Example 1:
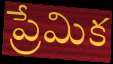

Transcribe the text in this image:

ప్రేమిక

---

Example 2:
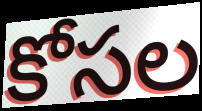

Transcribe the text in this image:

కోసల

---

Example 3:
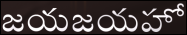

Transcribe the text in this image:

జయజయహో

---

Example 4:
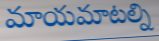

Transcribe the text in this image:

మాయమాటల్ని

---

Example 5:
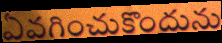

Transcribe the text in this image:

ఏవగించుకొందును